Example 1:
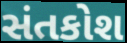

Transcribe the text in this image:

સંતકોશ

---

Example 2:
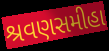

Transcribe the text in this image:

શ્રવણસમીહા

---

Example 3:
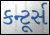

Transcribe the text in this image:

કન્ટૂર્સ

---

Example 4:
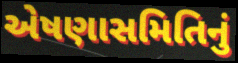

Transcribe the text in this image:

એષણાસમિતિનું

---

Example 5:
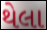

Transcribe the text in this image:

થેલા